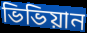
ভিভিয়ান